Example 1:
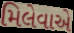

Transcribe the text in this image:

મિલેવાએ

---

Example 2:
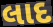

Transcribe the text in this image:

લાદ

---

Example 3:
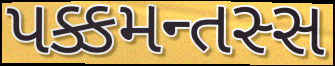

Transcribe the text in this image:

પક્કમન્તસ્સ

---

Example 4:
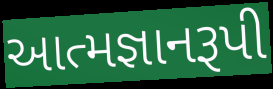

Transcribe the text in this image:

આત્મજ્ઞાનરૂપી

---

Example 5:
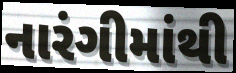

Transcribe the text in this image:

નારંગીમાંથી